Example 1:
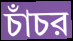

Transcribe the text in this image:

চাঁচর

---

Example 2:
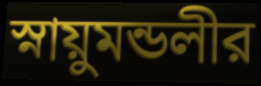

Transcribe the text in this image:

স্নায়ুমন্ডলীর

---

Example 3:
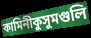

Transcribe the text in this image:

কামিনীকুসুমগুলি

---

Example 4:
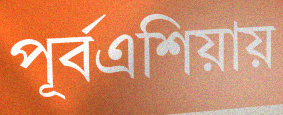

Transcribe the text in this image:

পূর্বএশিয়ায়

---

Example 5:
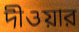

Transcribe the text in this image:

দীওয়ার